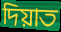
দিয়াত